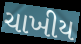
ચાખીય